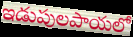
ఇడుపులపాయలో